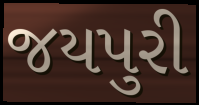
જયપુરી